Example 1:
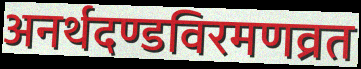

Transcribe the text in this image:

अनर्थदण्डविरमणव्रत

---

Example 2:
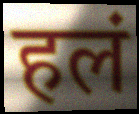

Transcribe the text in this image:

हलं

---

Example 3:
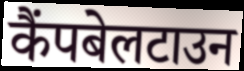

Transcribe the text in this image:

कैंपबेलटाउन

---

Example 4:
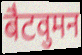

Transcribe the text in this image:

बैटवुमन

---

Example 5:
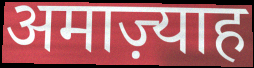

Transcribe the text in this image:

अमाज़्याह